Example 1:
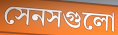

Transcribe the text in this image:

সেনসগুলো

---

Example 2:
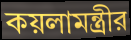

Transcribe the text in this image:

কয়লামন্ত্রীর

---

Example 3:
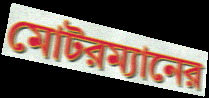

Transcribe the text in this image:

মোটরম্যানের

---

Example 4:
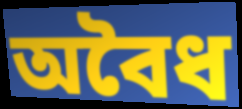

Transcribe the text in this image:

অবৈধ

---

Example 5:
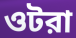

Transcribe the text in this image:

ওটরা